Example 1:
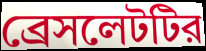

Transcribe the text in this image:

ব্রেসলেটটির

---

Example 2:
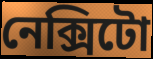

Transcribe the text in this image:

নেক্সিটো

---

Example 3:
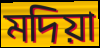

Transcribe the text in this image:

মদিয়া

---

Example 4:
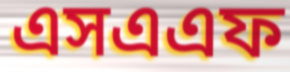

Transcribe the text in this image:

এসএএফ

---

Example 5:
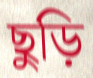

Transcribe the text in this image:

ছুড়ি